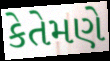
કેતેમણે